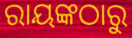
ରାୟଙ୍କଠାରୁ